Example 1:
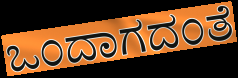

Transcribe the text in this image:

ಒಂದಾಗದಂತೆ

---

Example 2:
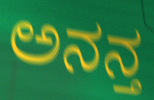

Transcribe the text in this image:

ಅನನ್ತ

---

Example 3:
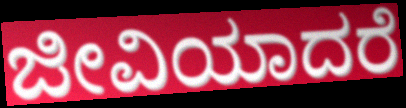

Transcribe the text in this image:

ಜೀವಿಯಾದರೆ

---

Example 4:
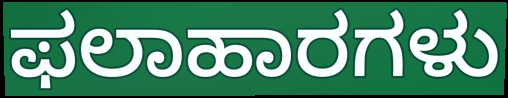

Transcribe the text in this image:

ಫಲಾಹಾರಗಳು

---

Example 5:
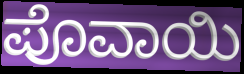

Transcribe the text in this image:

ಪೊವಾಯಿ